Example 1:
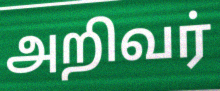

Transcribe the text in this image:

அறிவர்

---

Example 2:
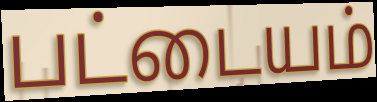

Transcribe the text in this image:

பட்டையம்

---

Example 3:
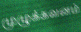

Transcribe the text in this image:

முழுக்கவனம்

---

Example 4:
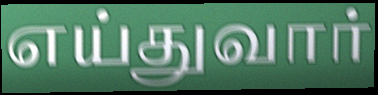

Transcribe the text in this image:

எய்துவார்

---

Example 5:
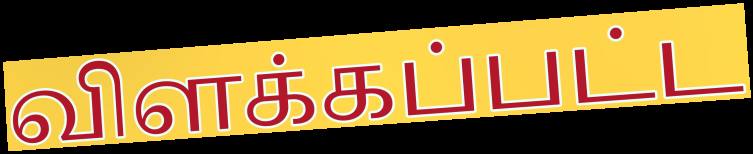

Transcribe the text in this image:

விளக்கப்பட்ட